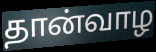
தான்வாழ